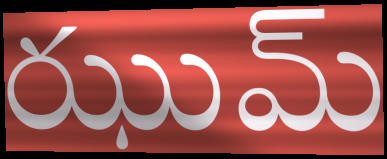
ఝుమ్